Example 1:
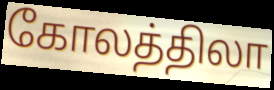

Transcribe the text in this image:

கோலத்திலா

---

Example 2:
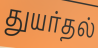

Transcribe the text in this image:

துயர்தல்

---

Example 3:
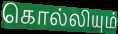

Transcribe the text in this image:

கொல்லியும்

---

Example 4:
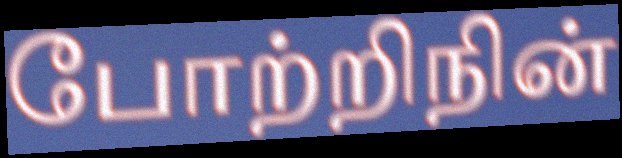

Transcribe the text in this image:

போற்றிநின்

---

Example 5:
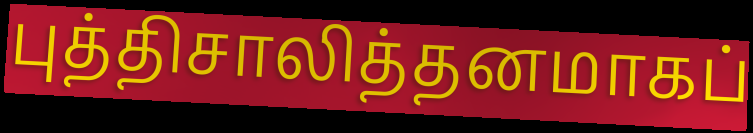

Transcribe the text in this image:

புத்திசாலித்தனமாகப்